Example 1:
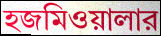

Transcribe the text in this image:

হজমিওয়ালার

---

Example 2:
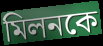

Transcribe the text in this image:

মিলনকে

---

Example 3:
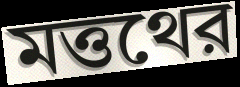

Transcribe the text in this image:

মত্তথের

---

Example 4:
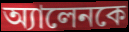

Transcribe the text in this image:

অ্যালেনকে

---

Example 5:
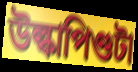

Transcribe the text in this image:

উল্কাপিণ্ডটা